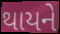
થાયને